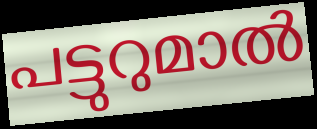
പട്ടുറുമാൽ